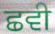
ਛਵੀ